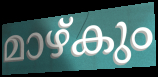
മാഴ്കും